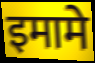
इमामे